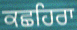
ਕਛਹਿਰਾ